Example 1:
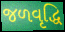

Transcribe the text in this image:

જળવૃદ્ધિ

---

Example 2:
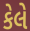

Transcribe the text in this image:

કેલે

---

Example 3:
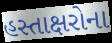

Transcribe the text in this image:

હસ્તાક્ષરોના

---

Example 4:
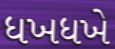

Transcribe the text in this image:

ધખધખે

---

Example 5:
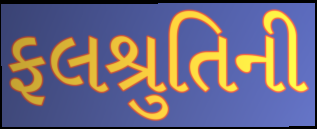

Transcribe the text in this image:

ફલશ્રુતિની